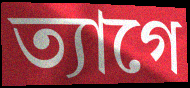
ত্যাগে